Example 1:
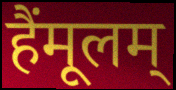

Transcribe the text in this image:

हैंमूलम्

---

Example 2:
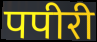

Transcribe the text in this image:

पपीरी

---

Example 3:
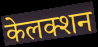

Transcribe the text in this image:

केलक्शन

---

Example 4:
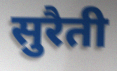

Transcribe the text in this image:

सुरैती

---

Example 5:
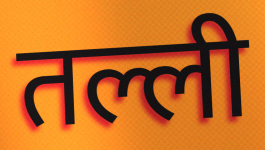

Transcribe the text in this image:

तल्ली